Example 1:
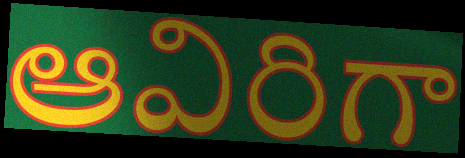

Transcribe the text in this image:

ఆవిరిగా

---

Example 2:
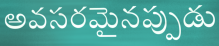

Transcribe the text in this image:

అవసరమైనప్పుడు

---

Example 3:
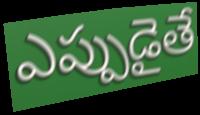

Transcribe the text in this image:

ఎప్పుడైతే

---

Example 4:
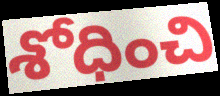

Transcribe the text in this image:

శోధించి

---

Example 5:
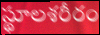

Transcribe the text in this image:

స్థూలశరీరం